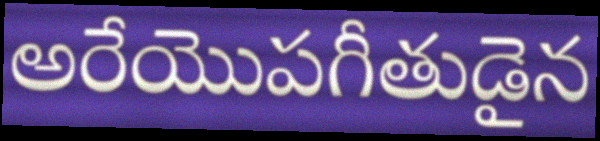
అరేయొపగీతుడైన